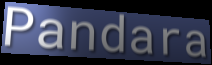
Pandara